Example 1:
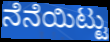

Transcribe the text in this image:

ನೆನೆಯಿಟ್ಟು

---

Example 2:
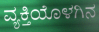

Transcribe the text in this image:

ವ್ಯಕ್ತಿಯೊಳಗಿನ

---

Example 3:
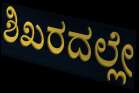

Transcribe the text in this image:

ಶಿಖರದಲ್ಲೇ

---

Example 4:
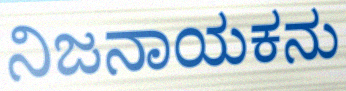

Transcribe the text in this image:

ನಿಜನಾಯಕನು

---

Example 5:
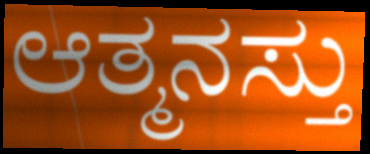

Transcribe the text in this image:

ಆತ್ಮನಸ್ತು